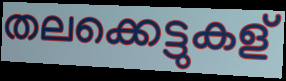
തലക്കെട്ടുകള്